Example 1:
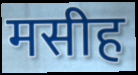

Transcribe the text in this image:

मसीह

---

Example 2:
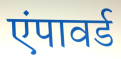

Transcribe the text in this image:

एंपावर्ड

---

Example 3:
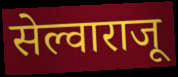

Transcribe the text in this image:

सेल्वाराजू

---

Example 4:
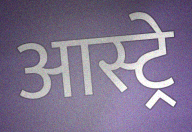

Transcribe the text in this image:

आस्ट्रे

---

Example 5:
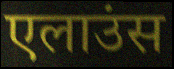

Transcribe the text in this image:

एलाउंस